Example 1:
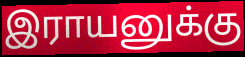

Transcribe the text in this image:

இராயனுக்கு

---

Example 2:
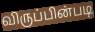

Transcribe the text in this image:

விருப்பின்படி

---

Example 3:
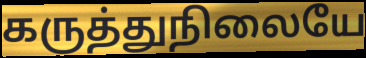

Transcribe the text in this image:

கருத்துநிலையே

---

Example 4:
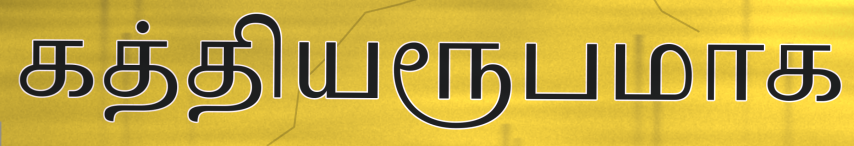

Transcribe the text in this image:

கத்தியரூபமாக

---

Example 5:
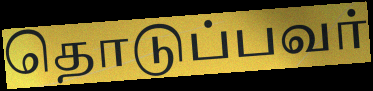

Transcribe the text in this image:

தொடுப்பவர்